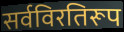
सर्वविरतिरूप